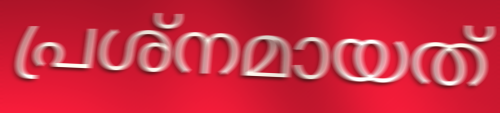
പ്രശ്നമായത്